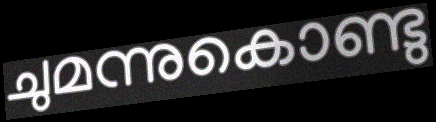
ചുമന്നുകൊണ്ടു